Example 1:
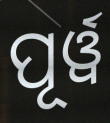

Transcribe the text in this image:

ପୂର୍ୱ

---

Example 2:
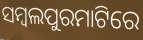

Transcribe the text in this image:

ସମ୍ବଲପୁରମାଟିରେ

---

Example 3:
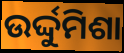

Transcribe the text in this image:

ଉର୍ଦ୍ଦୁମିଶା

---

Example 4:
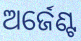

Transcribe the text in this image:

ଅର୍ଜେଣ୍ଟ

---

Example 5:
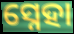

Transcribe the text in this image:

ସ୍ନେହା